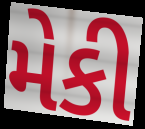
મેકી